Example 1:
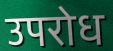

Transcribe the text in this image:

उपरोध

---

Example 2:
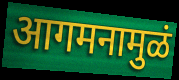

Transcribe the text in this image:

आगमनामुळं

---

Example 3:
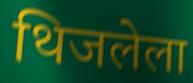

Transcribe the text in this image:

थिजलेला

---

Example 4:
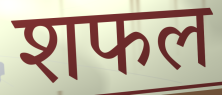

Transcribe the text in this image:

शफल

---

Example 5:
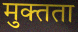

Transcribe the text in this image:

मुक्तता